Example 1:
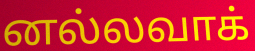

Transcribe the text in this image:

னல்லவாக்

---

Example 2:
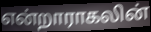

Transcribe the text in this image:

என்றாராகலின்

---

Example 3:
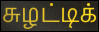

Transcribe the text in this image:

சுழட்டிக்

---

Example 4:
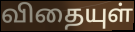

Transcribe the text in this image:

விதையுள்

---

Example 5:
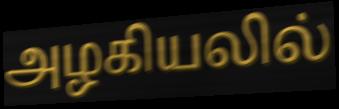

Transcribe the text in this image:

அழகியலில்